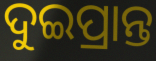
ଦୁଇପ୍ରାନ୍ତ